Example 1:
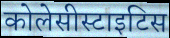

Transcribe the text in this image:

कोलेसीस्टाइटिस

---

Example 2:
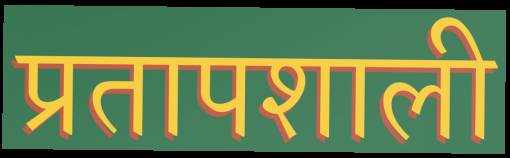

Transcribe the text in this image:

प्रतापशाली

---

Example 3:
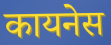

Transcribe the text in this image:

कायनेस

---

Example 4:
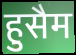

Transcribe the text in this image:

हुसैम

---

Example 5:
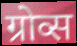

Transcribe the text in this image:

ग्रोव्स